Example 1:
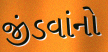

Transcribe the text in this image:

જીંડવાંનો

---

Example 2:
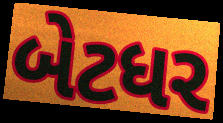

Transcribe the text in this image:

બેટધર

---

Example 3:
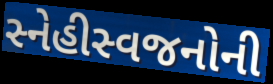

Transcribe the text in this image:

સ્નેહીસ્વજનોની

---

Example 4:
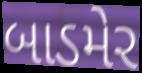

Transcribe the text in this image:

બાડમેર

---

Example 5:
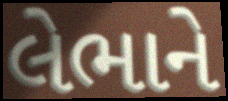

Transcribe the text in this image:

લેભાને